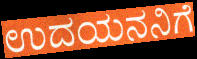
ಉದಯನನಿಗೆ